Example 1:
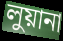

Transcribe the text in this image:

লুয়ানা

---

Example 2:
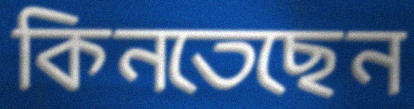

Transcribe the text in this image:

কিনতেছেন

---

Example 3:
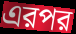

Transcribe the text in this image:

এরপর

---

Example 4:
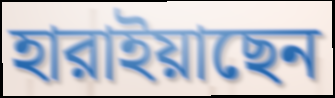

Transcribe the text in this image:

হারাইয়াছেন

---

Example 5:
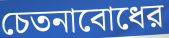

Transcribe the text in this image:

চেতনাবোধের